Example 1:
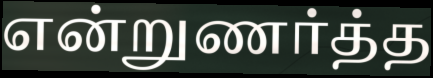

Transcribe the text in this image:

என்றுணர்த்த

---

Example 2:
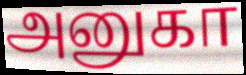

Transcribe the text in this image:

அனுகா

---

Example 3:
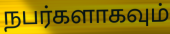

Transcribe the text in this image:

நபர்களாகவும்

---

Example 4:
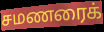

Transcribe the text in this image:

சமணரைக்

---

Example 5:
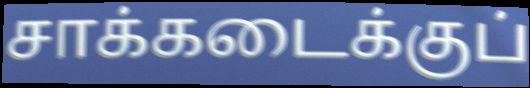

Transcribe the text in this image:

சாக்கடைக்குப்